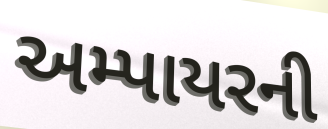
અમ્પાયરની